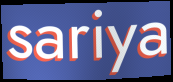
sariya